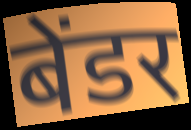
बेंडर